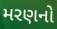
મરણનો